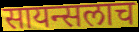
सायन्सलाच